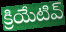
క్రియేటివ్